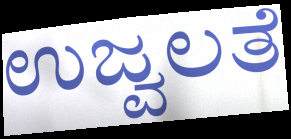
ಉಜ್ವಲತೆ